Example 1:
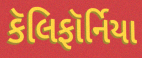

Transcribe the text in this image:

કૅલિફૉર્નિયા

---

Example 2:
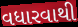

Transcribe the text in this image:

વધારવાથી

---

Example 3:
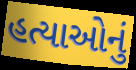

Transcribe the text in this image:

હત્યાઓનું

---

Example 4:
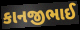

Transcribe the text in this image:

કાનજીભાઈ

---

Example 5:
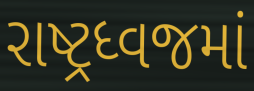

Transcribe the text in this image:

રાષ્ટ્રધ્વજમાં